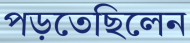
পড়তেছিলেন